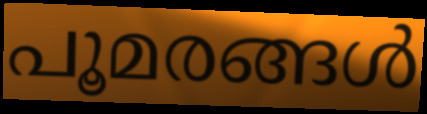
പൂമരങ്ങൾ